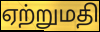
ஏற்றுமதி